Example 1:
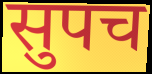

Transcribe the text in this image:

सुपच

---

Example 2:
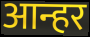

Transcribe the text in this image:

आन्हर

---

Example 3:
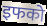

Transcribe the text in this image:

इफको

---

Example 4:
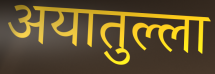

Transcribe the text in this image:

अयातुल्ला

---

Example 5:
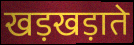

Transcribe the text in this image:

खड़खड़ाते